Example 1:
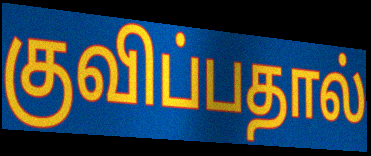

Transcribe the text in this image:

குவிப்பதால்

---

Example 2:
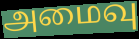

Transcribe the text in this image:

அமைவு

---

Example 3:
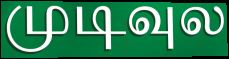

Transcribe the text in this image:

முடிவுல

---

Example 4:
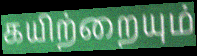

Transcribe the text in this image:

கயிற்றையும்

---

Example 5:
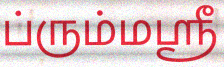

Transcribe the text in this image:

ப்ரும்மஸ்ரீ